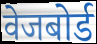
वेजबोर्ड